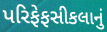
પરિફેફસીકલાનું